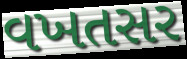
વખતસર